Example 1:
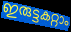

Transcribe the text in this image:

ഇരുട്ടകറ്റാം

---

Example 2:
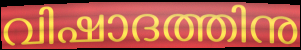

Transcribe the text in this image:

വിഷാദത്തിനു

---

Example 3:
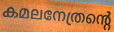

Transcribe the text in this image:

കമലനേത്രന്റെ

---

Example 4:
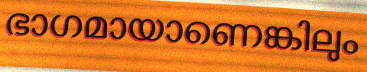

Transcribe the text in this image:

ഭാഗമായാണെങ്കിലും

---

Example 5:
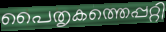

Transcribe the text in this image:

പൈതൃകത്തെപ്പറ്റി